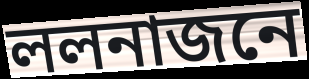
ললনাজনে